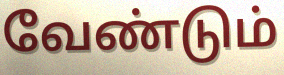
வேண்டும்